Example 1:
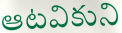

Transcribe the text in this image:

ఆటవికుని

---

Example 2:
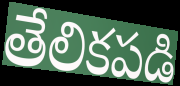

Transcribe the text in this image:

తేలికపడి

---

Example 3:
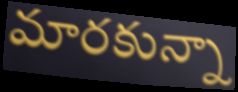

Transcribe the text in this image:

మారకున్నా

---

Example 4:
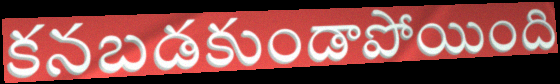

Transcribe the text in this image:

కనబడకుండాపోయింది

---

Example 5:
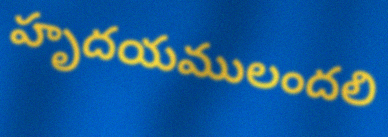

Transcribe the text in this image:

హృదయములందలి